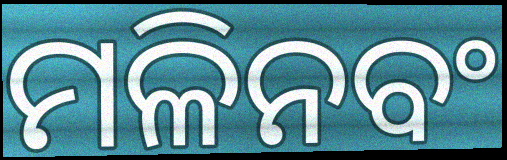
ମଳିନବଂ